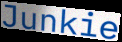
Junkie